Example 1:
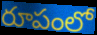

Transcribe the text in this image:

రూపంలో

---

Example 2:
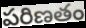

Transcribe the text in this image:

పరిణతం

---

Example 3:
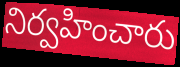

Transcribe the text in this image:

నిర్వహించారు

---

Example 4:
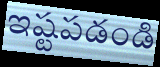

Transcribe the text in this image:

ఇష్టపడండి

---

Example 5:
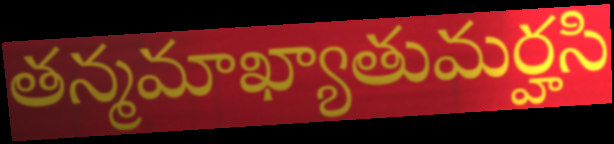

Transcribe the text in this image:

తన్మమాఖ్యాతుమర్హసి